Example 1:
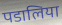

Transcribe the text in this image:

पडालिया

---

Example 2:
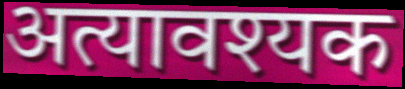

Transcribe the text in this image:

अत्यावश्यक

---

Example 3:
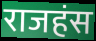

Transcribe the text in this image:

राजहंस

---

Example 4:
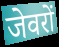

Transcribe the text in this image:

जेवरों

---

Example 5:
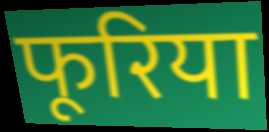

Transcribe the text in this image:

फूरिया